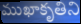
ముఖాకృతిని